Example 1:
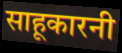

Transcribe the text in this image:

साहूकारनी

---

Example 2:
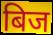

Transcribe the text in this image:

बिज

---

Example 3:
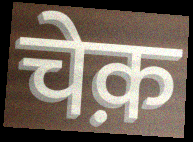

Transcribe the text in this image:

चेक़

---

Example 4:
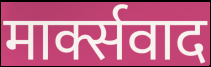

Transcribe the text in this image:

मार्क्सवाद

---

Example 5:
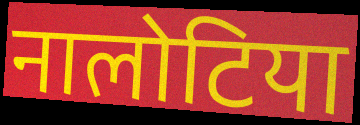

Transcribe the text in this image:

नालोटिया